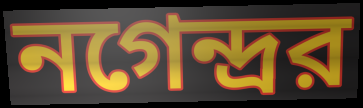
নগেন্দ্রর